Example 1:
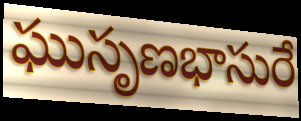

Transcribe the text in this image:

ఘుసృణభాసురే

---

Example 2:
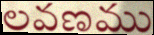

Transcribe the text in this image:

లవణము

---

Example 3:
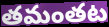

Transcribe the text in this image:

తమంతట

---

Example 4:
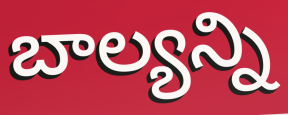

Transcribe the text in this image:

బాల్యన్ని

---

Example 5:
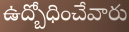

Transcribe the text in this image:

ఉద్బోధించేవారు